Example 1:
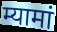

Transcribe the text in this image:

म्यामां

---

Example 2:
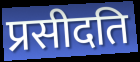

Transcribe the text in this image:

प्रसीदति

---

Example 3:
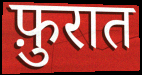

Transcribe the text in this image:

फ़ुरात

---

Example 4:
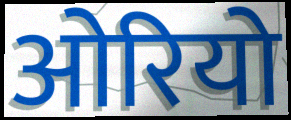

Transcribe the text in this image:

ओरियो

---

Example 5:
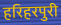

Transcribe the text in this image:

हरिहरपुरी